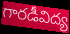
గారడీవిద్య